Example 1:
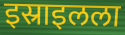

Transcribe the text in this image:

इस्राइलला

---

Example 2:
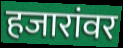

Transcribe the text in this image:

हजारांवर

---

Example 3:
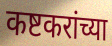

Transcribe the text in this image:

कष्टकरांच्या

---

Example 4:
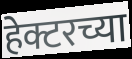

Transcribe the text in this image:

हेक्टरच्या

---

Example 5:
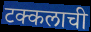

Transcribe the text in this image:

टक्कलाची